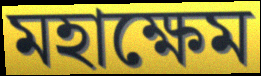
মহাক্ষেম